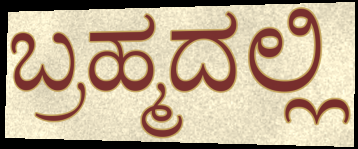
ಬ್ರಹ್ಮದಲ್ಲಿ